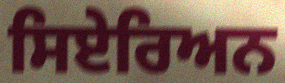
ਸਿਏਰਿਅਨ